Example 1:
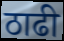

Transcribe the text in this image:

ठाढी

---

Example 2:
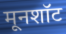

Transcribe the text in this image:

मूनशॉट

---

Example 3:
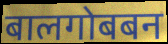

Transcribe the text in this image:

बालगोबबन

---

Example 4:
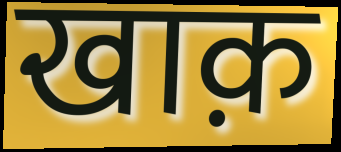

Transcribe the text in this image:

खाक़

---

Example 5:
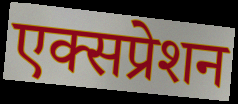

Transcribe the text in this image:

एक्सप्रेशन